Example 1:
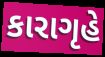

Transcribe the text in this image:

કારાગૃહે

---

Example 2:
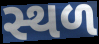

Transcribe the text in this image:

સ્થળ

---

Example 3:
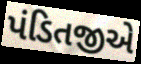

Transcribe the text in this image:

પંડિતજીએ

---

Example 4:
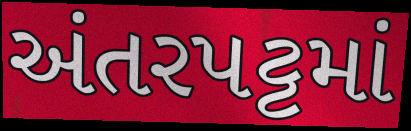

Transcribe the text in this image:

અંતરપટ્ટમાં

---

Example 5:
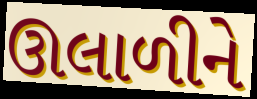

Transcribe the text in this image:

ઊલાળીને